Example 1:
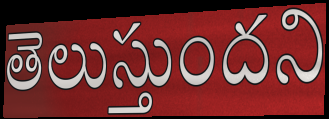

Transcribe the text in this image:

తెలుస్తుందని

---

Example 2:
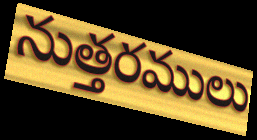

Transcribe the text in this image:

నుత్తరములు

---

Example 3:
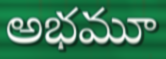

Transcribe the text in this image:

అభమూ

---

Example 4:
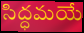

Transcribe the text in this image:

సిద్ధమయే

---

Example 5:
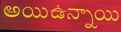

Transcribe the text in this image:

అయిఉన్నాయి